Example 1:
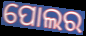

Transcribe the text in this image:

ପୋଲର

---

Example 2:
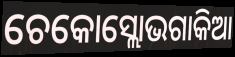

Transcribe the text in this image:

ଚେକୋସ୍ଲୋଭଗାକିଆ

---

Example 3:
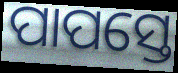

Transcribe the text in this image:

ପାପସ୍ତେ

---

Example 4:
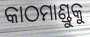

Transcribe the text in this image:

କାଠମାଣ୍ଡୁକୁ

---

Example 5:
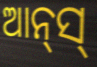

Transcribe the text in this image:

ଆନ୍‌ସ୍